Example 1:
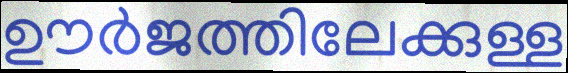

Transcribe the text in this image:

ഊർജത്തിലേക്കുള്ള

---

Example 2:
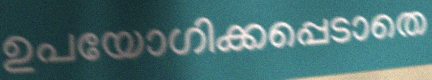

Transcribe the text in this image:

ഉപയോഗിക്കപ്പെടാതെ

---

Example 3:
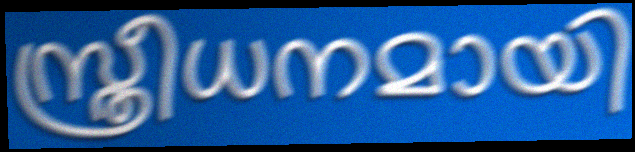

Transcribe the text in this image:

സ്ത്രീധനമായി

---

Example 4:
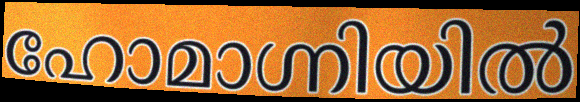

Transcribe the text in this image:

ഹോമാഗ്നിയിൽ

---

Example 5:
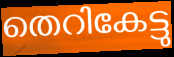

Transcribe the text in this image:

തെറികേട്ടു